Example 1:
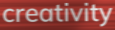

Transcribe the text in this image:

creativity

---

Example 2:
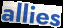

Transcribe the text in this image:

allies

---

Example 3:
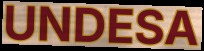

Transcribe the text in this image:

UNDESA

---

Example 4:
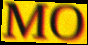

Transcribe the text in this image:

MO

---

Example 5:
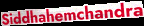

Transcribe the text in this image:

Siddhahemchandra